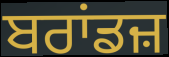
ਬਰਾਂਡਜ਼